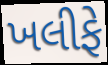
ખલીફે